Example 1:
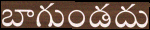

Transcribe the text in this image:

బాగుండదు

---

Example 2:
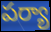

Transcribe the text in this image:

పర్యా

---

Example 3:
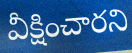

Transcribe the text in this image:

వీక్షించారని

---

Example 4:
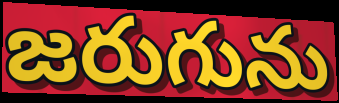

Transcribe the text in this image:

జరుగును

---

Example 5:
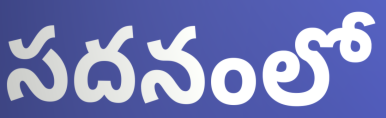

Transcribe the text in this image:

సదనంలో